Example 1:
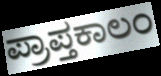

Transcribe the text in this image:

ಪ್ರಾಪ್ತಕಾಲಂ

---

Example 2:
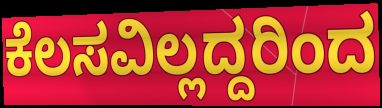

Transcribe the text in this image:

ಕೆಲಸವಿಲ್ಲದ್ದರಿಂದ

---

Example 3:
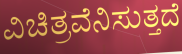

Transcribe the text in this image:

ವಿಚಿತ್ರವೆನಿಸುತ್ತದೆ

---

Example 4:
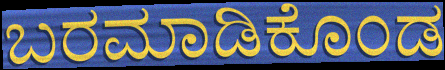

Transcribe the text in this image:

ಬರಮಾಡಿಕೊಂಡ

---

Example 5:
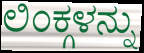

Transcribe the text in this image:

ಲಿಂಕ್ಗಳನ್ನು